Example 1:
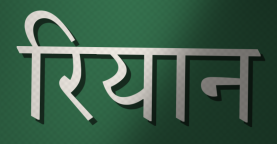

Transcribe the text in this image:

रियान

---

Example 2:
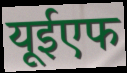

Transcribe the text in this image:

यूईएफ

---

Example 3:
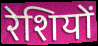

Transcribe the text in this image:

रेशियों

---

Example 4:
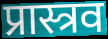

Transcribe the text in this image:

प्रास्त्रव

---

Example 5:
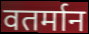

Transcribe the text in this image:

वतर्मान